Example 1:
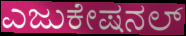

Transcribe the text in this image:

ಎಜುಕೇಷನಲ್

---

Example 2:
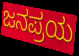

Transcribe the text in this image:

ಜನಪ್ರಯ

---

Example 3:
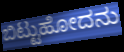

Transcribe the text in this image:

ಬಿಟ್ಟುಹೋದನು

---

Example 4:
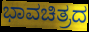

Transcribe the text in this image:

ಭಾವಚಿತ್ರದ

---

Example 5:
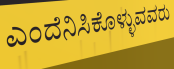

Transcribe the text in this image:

ಎಂದೆನಿಸಿಕೊಳ್ಳುವವರು